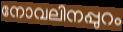
നോവലിനപ്പുറം